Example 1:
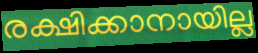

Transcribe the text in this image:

രക്ഷിക്കാനായില്ല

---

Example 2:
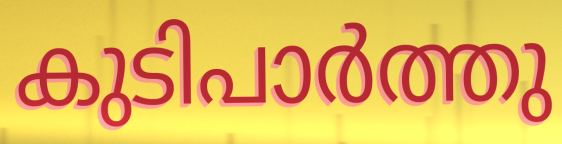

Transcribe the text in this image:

കുടിപാർത്തു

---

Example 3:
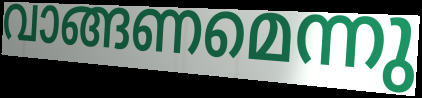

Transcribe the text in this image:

വാങ്ങണമെന്നു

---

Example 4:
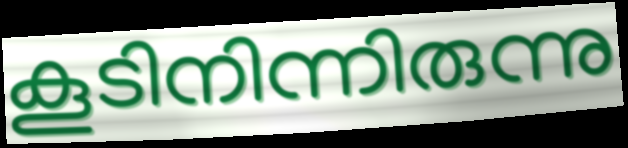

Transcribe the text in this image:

കൂടിനിന്നിരുന്നു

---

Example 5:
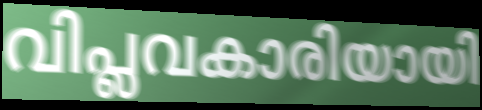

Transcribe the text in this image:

വിപ്ലവകാരിയായി